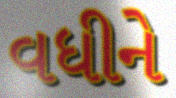
વધીને